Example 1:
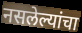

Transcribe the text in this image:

नसलेल्यांचा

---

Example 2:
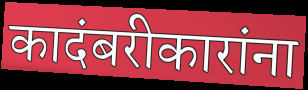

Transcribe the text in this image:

कादंबरीकारांना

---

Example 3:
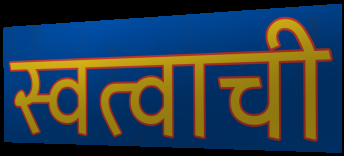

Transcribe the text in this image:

स्वत्वाची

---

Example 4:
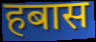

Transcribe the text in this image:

हबास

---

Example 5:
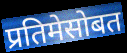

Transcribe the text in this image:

प्रतिमेसोबत